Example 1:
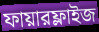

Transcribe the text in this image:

ফায়ারফ্লাইজ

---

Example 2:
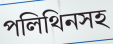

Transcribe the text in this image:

পলিথিনসহ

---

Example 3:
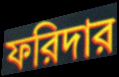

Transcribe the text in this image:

ফরিদার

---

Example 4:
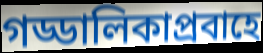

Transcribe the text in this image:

গড্ডালিকাপ্রবাহে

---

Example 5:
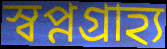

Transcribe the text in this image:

স্বপ্নগ্রাহ্য